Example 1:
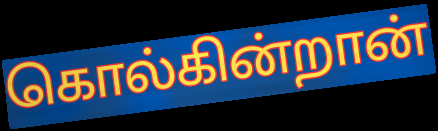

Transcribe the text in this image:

கொல்கின்றான்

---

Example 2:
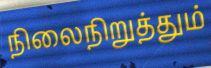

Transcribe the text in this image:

நிலைநிறுத்தும்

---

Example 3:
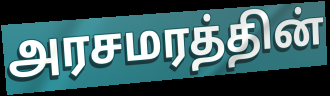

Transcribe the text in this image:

அரசமரத்தின்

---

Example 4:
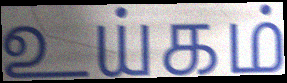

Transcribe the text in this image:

உய்கம்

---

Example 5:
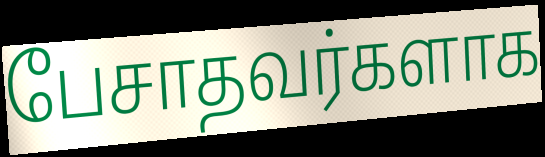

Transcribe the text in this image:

பேசாதவர்களாக